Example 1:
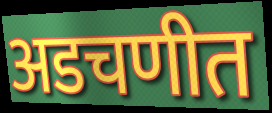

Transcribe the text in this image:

अडचणीत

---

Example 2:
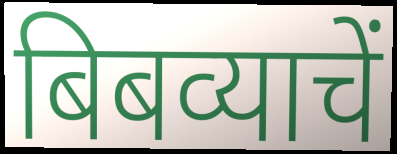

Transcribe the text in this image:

बिबव्याचें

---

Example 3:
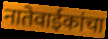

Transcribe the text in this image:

नातेवाईकांचा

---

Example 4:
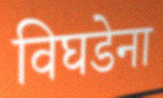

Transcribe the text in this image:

विघडेना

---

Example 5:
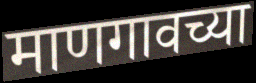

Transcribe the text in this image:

माणगावच्या